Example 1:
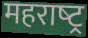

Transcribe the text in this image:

महराष्‍ट्र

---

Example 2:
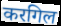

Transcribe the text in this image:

करगिल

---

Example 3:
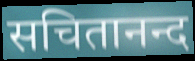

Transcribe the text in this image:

सचितानन्द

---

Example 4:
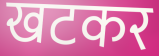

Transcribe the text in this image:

खटकर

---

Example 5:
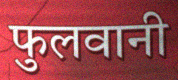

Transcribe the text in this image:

फुलवानी